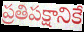
ప్రతిపక్షానికే